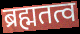
ब्रह्मतत्व